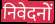
निवेदनों